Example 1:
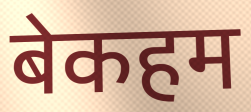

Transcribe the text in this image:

बेकहम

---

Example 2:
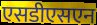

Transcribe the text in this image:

एसडीएसएन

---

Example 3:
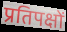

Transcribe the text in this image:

प्रतिपक्षों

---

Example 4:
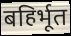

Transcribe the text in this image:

बहिर्भूत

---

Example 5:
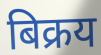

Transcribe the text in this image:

बिक्रय